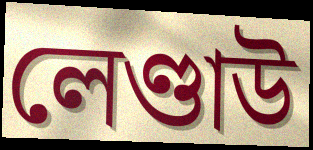
লেণ্ডাউ